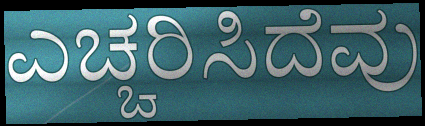
ಎಚ್ಚರಿಸಿದೆವು